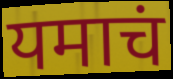
यमाचं